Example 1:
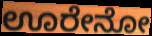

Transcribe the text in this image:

ಊರೇನೋ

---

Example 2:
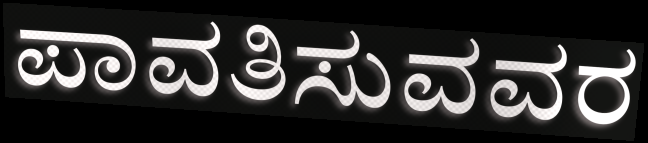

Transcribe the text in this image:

ಪಾವತಿಸುವವರ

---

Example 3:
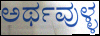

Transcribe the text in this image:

ಅರ್ಥವುಳ್ಳ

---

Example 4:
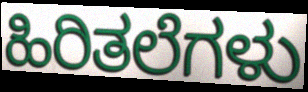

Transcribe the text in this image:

ಹಿರಿತಲೆಗಳು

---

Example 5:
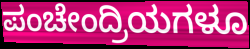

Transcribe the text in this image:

ಪಂಚೇಂದ್ರಿಯಗಳೂ